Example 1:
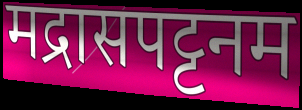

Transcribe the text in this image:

मद्रासपट्टनम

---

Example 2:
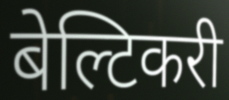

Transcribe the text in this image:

बेल्टिकरी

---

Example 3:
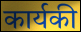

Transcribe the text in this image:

कार्यकी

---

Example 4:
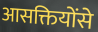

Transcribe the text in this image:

आसक्तियोंसे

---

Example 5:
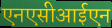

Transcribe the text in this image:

एनएसीआईएन